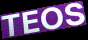
TEOS